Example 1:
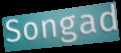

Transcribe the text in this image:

Songad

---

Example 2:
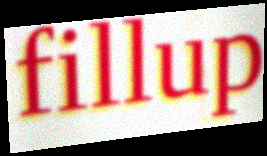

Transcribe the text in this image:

fillup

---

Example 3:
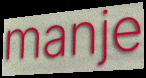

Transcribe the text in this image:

manje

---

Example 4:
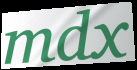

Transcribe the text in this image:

mdx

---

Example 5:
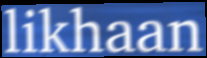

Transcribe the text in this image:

likhaan